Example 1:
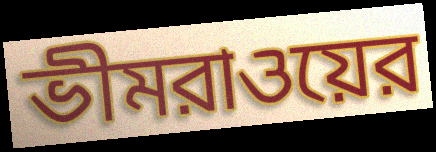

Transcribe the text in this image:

ভীমরাওয়ের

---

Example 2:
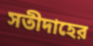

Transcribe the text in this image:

সতীদাহের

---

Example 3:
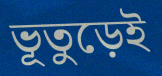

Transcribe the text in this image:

ভূতুড়েই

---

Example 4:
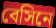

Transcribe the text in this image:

বেসিনে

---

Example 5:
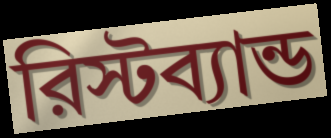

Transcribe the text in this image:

রিস্টব্যান্ড